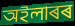
অইলাৰৰ